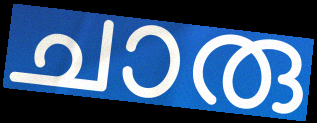
ചാരു